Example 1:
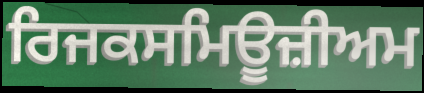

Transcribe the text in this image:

ਰਿਜਕਸਮਿਊਜ਼ੀਅਮ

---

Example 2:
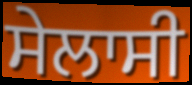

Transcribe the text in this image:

ਸੇਲਾਸੀ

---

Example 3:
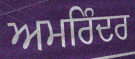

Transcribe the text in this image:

ਅਮਰਿੰਦਰ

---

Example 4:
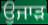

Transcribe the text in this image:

ਉਜਾੜ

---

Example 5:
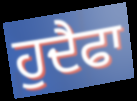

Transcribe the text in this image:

ਹੁਦੈਫਾ